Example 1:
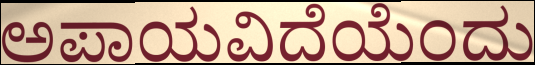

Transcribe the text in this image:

ಅಪಾಯವಿದೆಯೆಂದು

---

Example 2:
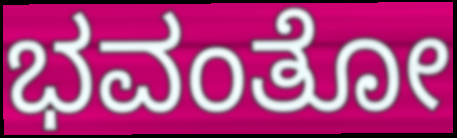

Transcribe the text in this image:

ಭವಂತೋ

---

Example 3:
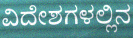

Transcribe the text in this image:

ವಿದೇಶಗಳಲ್ಲಿನ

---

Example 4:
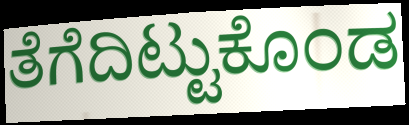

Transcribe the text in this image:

ತೆಗೆದಿಟ್ಟುಕೊಂಡ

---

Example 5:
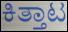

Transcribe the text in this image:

ಕಿತ್ತಾಟ